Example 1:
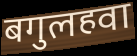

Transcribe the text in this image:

बगुलहवा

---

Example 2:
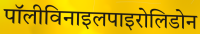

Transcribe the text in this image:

पॉलीविनाइलपाइरोलिडोन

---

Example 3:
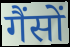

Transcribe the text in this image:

गैंसों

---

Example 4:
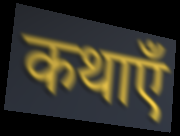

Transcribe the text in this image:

कथाएँ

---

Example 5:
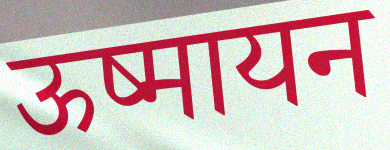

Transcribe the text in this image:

ऊष्मायन